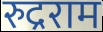
रुद्रराम